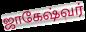
ஜாகேஷ்வர்